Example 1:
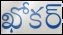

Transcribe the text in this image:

ఖోకర్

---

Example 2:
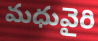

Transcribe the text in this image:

మధువైరి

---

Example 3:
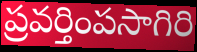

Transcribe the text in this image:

ప్రవర్తింపసాగిరి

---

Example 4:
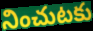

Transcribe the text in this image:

నించుటకు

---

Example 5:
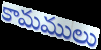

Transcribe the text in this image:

కామములు